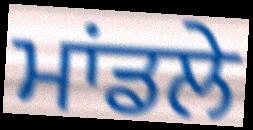
ਮਾਂਡਲੇ